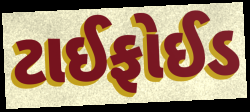
ટાઈફોઈડ